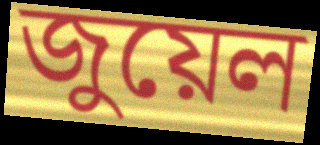
জুয়েল